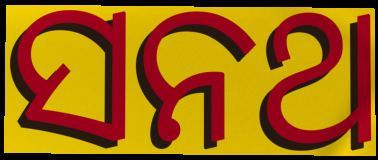
ସନଥ